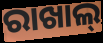
ରାଖାଲ୍